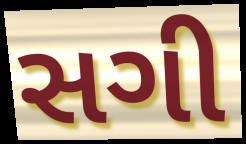
સગી